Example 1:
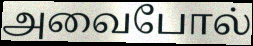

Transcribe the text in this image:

அவைபோல்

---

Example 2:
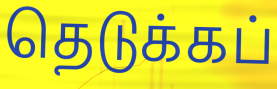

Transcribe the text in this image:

தெடுக்கப்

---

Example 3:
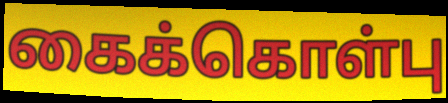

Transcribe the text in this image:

கைக்கொள்பு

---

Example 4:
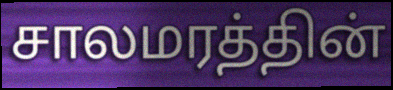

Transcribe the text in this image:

சாலமரத்தின்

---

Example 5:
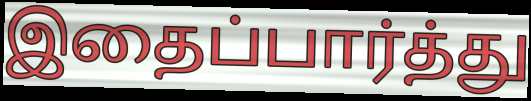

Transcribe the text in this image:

இதைப்பார்த்து